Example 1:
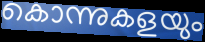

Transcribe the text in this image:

കൊന്നുകളയും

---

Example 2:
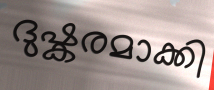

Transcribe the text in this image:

ദുഷ്കരമാക്കി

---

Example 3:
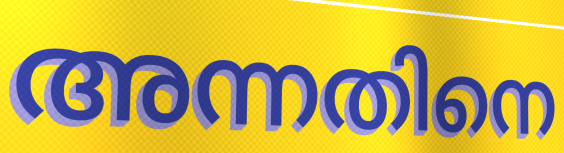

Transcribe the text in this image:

അന്നതിനെ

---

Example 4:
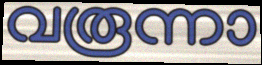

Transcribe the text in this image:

വരൂന്നാ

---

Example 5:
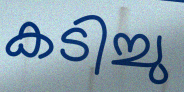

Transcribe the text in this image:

കടിച്ചു